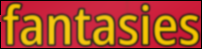
fantasies